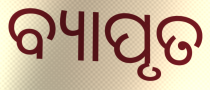
ବ୍ୟାପୃତ